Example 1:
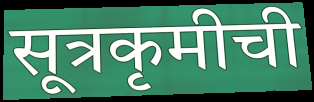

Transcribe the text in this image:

सूत्रकृमीची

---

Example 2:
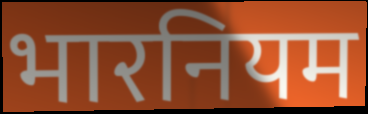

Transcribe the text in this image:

भारनियम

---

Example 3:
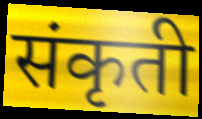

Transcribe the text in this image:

संकृती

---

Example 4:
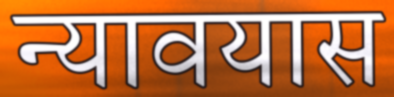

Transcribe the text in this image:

न्यावयास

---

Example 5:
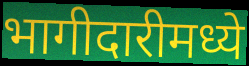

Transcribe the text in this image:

भागीदारीमध्ये